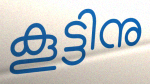
കൂട്ടിനു